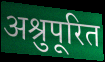
अश्रुपूरित